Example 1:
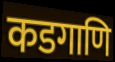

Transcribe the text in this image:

कडगाणि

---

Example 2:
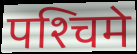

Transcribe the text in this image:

पश्चिमे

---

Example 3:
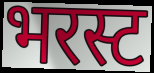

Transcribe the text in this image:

भरस्ट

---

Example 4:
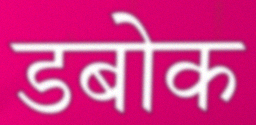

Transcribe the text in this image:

डबोक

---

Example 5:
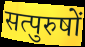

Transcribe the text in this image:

सत्पुरुषों